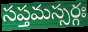
సప్తమస్సర్గః